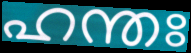
ഹന്തഃ